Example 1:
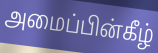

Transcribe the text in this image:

அமைப்பின்கீழ்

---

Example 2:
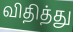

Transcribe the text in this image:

விதித்து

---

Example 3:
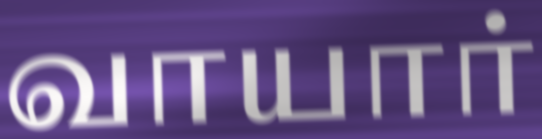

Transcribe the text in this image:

வாயார்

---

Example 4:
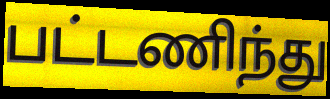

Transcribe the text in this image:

பட்டணிந்து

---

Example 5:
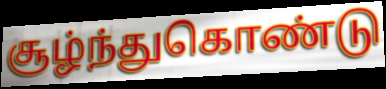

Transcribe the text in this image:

சூழ்ந்துகொண்டு